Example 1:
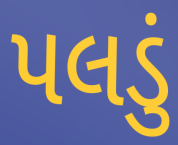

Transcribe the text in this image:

પલડું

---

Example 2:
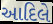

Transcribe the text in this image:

આદિલે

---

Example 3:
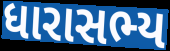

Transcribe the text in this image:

ધારાસભ્ય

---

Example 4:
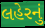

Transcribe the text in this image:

લહેરનું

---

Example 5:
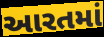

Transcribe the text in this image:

આરતમાં